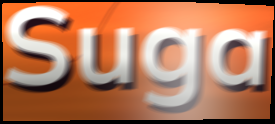
Suga